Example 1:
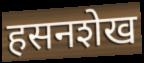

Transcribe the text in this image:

हसनशेख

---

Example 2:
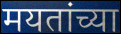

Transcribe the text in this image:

मयतांच्या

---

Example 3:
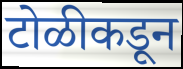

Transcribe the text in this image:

टोळीकडून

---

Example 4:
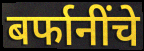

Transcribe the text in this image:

बर्फानींचे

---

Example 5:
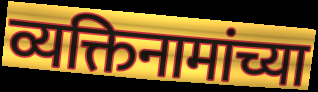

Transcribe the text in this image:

व्यक्तिनामांच्या